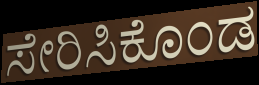
ಸೇರಿಸಿಕೊಂಡ